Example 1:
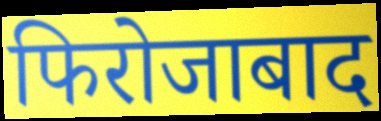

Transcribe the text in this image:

फिरोजाबाद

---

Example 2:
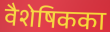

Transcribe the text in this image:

वैशेषिकका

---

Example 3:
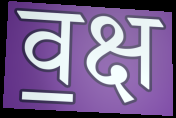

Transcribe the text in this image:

व॒क्ष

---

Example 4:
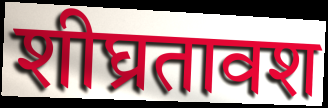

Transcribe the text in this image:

शीघ्रतावश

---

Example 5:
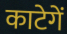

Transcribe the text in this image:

काटेगें